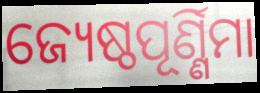
ଜ୍ୟେଷ୍ଠପୂର୍ଣ୍ଣିମା